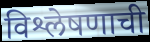
विश्लेषणाची